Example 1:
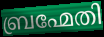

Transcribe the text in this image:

ബ്രഹ്മേതി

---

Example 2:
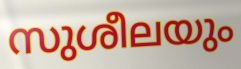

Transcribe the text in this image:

സുശീലയും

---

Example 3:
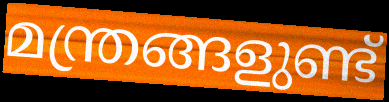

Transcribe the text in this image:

മന്ത്രങ്ങളുണ്ട്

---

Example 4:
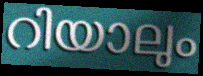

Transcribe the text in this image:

റിയാലും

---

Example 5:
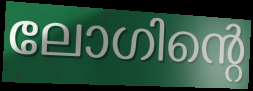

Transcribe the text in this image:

ലോഗിന്റെ